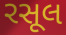
રસૂલ